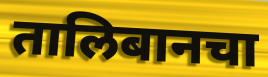
तालिबानचा